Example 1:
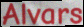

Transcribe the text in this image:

Alvars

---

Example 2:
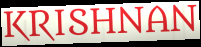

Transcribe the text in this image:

KRISHNAN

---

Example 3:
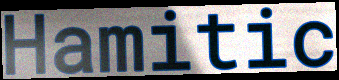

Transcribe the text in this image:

Hamitic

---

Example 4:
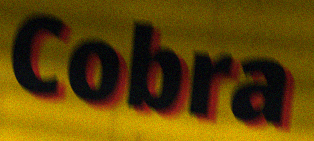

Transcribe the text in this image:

Cobra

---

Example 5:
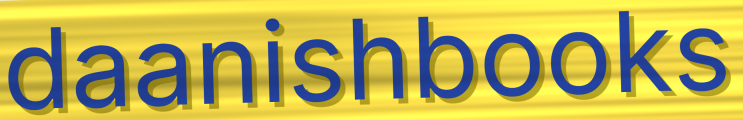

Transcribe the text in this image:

daanishbooks